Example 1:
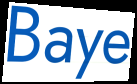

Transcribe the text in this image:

Baye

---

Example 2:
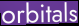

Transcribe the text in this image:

orbitals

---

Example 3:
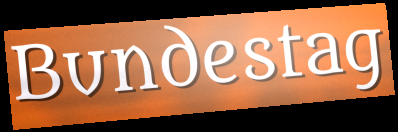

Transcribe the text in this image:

Bundestag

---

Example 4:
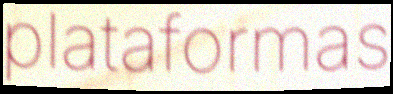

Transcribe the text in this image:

plataformas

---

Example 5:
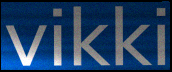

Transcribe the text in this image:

vikki